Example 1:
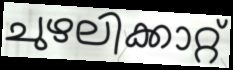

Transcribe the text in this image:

ചുഴലിക്കാറ്റ്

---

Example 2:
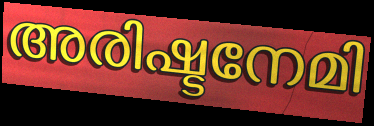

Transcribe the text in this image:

അരിഷ്ടനേമി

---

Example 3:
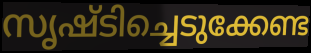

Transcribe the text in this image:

സൃഷ്ടിച്ചെടുക്കേണ്ട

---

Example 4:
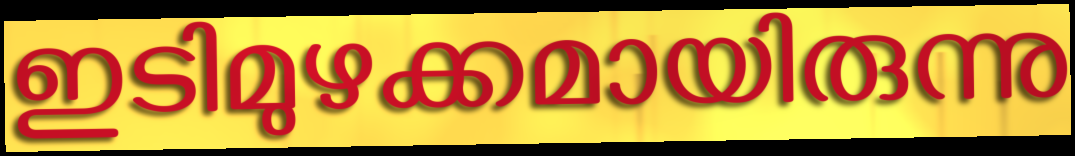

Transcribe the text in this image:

ഇടിമുഴക്കമായിരുന്നു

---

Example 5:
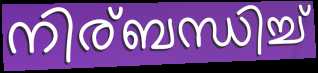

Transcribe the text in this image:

നിര്ബന്ധിച്ച്